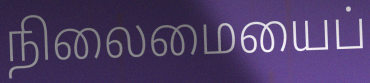
நிலைமையைப்